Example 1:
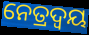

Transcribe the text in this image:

ନେତ୍ରଦ୍ୱୟ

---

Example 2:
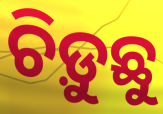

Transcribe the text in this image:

ଚିଡ଼ୁଛୁ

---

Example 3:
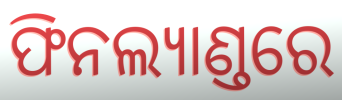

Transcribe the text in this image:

ଫିନଲ୍ୟାଣ୍ଡରେ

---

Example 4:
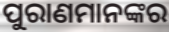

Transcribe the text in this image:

ପୁରାଣମାନଙ୍କର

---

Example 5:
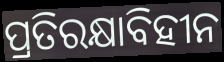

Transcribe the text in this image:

ପ୍ରତିରକ୍ଷାବିହୀନ